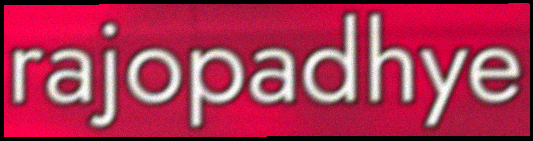
rajopadhye